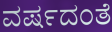
ವರ್ಷದಂತೆ